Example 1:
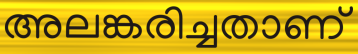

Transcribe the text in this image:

അലങ്കരിച്ചതാണ്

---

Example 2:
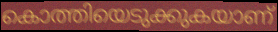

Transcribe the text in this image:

കൊത്തിയെടുക്കുകയാണ്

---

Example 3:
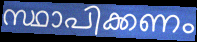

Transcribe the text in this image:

സ്ഥാപിക്കണം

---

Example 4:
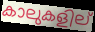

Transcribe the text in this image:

കാലുകളില്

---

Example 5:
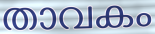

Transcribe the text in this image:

താവകം